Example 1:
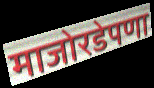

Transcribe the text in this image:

माजोरडेपणा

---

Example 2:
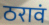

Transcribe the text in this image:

ठरावं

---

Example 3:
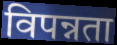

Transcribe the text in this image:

विपन्नता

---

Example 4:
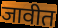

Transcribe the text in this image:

जावीत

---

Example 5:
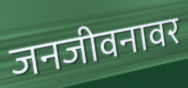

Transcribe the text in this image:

जनजीवनावर